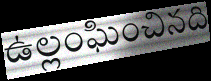
ఉల్లంఘించినది